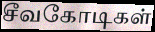
சீவகோடிகள்